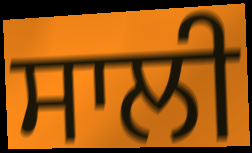
ਸਾਲੀ